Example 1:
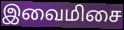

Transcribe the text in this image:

இவைமிசை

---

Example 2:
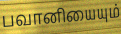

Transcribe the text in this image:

பவானியையும்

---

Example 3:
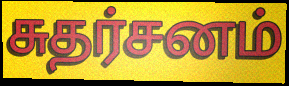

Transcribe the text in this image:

சுதர்சனம்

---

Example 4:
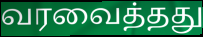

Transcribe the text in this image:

வரவைத்தது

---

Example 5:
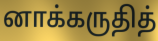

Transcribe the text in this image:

னாக்கருதித்